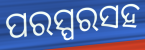
ପରସ୍ପରସହ